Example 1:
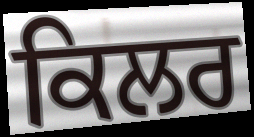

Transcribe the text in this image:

ਕਿਲਰ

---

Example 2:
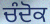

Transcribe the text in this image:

ਚੰਦੋਕ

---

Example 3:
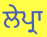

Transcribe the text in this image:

ਲੇਪ੍ਰਾ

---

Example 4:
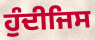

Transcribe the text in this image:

ਹੁੰਦੀਜਿਸ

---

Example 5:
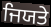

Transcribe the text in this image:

ਜਿਯਤੇ